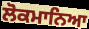
ਲੋਕਮਾਨਿਆ